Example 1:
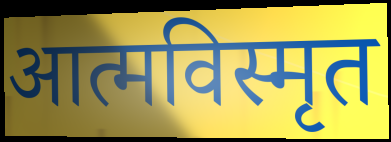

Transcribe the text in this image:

आत्मविस्मृत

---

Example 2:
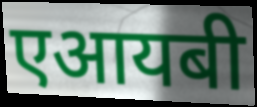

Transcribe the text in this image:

एआयबी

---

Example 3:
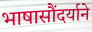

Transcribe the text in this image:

भाषासौंदर्याने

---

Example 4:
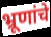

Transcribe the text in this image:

भ्रूणांचे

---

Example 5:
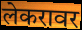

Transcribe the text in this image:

लेकरावर